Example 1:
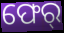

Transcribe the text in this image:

ଫେର୍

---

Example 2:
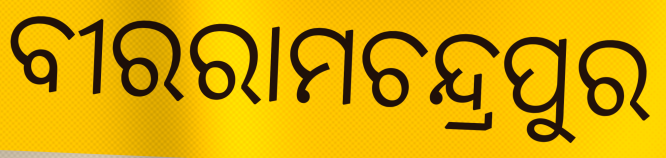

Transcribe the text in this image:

ବୀରରାମଚନ୍ଦ୍ରପୁର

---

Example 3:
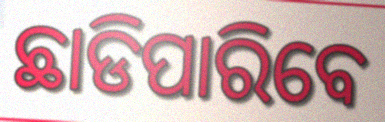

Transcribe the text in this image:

ଛାଡିପାରିବେ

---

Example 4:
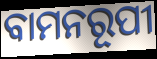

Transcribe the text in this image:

ବାମନରୂପୀ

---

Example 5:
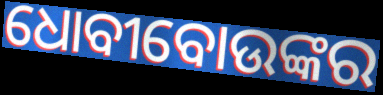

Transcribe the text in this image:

ଧୋବୀବୋଉଙ୍କର